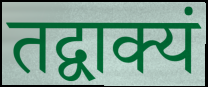
तद्वाक्यं